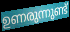
ഉണരുന്നുണ്ട്